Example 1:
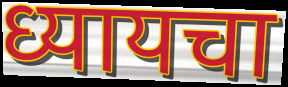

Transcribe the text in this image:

ध्यायचा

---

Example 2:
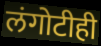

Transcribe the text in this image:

लंगोटीही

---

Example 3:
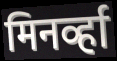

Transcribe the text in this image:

मिनर्व्हा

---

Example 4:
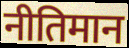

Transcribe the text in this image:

नीतिमान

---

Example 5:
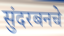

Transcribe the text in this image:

सुंदरबनचे